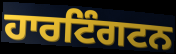
ਹਾਰਟਿੰਗਟਨ